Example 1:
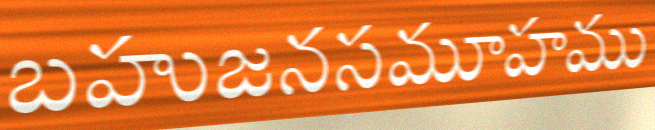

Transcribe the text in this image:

బహుజనసమూహము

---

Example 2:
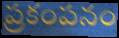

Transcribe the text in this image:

ప్రకంపనం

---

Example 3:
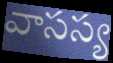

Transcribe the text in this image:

వాసస్య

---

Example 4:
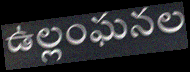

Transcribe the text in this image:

ఉల్లంఘనల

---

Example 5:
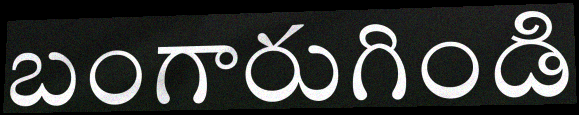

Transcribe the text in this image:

బంగారుగిండి